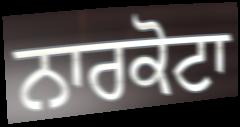
ਨਾਰਕੋਟਾ